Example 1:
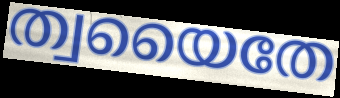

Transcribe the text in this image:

ത്വയൈതേ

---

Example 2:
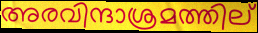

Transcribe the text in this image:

അരവിന്ദാശ്രമത്തില്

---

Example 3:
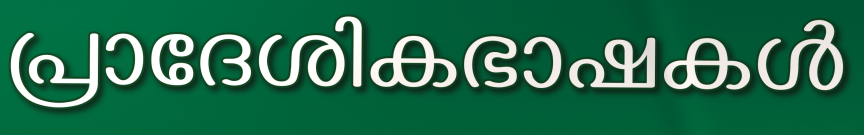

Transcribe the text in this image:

പ്രാദേശികഭാഷകൾ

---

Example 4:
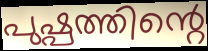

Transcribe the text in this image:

പുഷ്പത്തിന്റെ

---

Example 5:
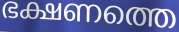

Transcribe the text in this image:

ഭക്ഷണത്തെ